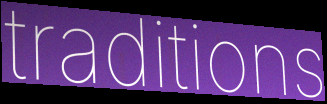
traditions